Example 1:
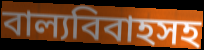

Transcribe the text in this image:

বাল্যবিবাহসহ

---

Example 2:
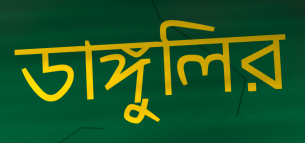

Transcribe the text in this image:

ডাঙ্গুলির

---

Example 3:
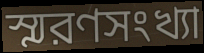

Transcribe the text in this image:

স্মরণসংখ্যা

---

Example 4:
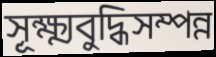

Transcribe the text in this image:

সূক্ষ্মবুদ্ধিসম্পন্ন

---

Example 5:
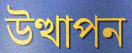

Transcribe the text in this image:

উত্থাপন